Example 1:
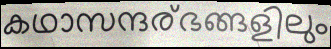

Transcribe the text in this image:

കഥാസന്ദര്ഭങ്ങളിലും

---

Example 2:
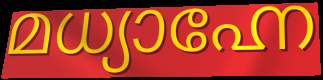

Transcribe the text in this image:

മധ്യാഹ്നേ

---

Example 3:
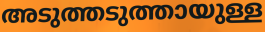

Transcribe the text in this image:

അടുത്തടുത്തായുള്ള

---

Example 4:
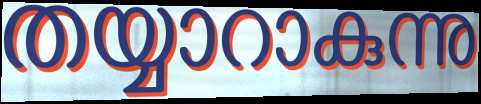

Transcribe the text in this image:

തയ്യാറാകുന്നു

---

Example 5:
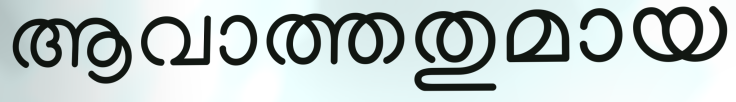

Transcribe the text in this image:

ആവാത്തതുമായ